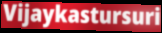
Vijaykastursuri